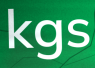
kgs